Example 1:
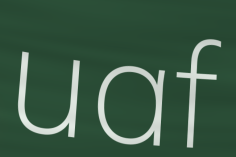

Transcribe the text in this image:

uaf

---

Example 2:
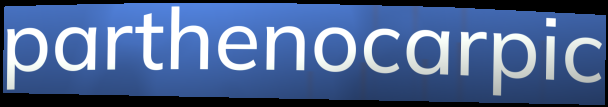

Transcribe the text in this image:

parthenocarpic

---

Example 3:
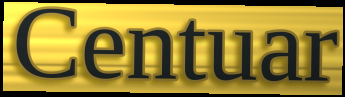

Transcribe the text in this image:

Centuar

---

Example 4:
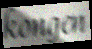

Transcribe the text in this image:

kongen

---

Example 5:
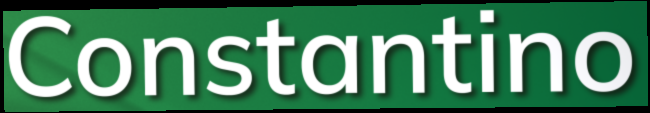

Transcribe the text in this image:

Constantino